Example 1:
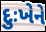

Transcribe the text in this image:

દુઃખેને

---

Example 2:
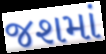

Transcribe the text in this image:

જશમાં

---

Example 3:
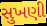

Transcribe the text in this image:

સુખણી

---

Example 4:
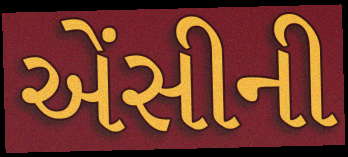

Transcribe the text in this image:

એંસીની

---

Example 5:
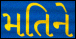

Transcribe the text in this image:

મતિને